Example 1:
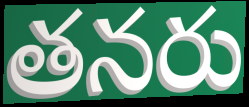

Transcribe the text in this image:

తనరు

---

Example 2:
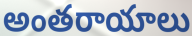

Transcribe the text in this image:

అంతరాయాలు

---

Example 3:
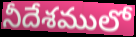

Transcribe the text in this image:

నీదేశములో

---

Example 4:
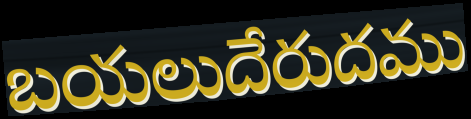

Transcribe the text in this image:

బయలుదేరుదము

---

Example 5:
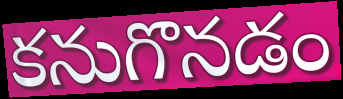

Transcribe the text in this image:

కనుగొనడం